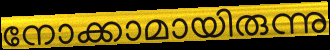
നോക്കാമായിരുന്നു